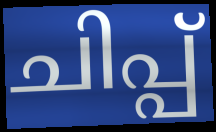
ചിപ്പ്